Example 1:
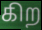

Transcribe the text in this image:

கிற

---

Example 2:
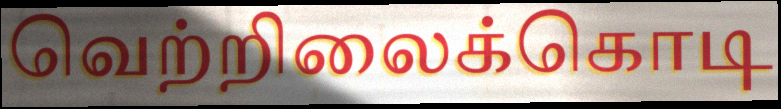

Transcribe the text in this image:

வெற்றிலைக்கொடி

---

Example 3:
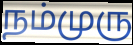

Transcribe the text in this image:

நம்முரு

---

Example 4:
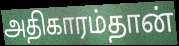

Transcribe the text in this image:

அதிகாரம்தான்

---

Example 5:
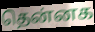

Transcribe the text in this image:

தென்னக